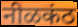
नीळकंठ